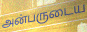
அன்பருடைய